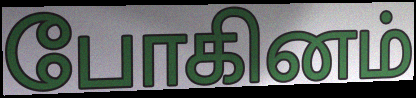
போகினம்